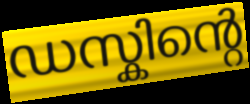
ഡസ്കിന്റെ